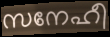
സനേഹീ